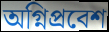
অগ্নিপ্রবেশ